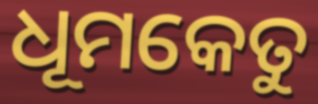
ଧୂମକେତୁ